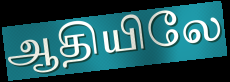
ஆதியிலே